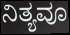
ನಿತ್ಯವೂ